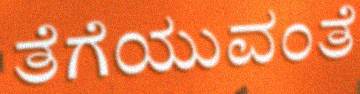
ತೆಗೆಯುವಂತೆ